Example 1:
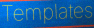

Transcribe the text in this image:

Templates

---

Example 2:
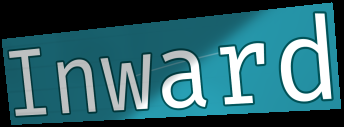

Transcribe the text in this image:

Inward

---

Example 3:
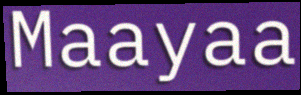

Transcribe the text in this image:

Maayaa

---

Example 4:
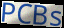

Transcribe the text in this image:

PCBs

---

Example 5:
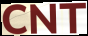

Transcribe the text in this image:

CNT